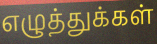
எழுத்துக்கள்